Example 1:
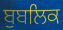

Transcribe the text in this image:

ਬੁਬਲਿਕ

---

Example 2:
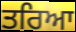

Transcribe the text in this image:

ਤਰਿਆ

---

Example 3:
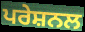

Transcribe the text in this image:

ਪਰੇਸ਼ਨਲ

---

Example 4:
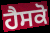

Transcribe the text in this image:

ਹੈਸਕੋ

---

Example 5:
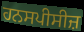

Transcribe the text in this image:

ਹਨਸਪੀਸੀਜ਼